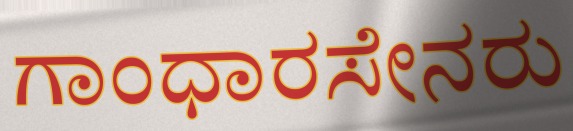
ಗಾಂಧಾರಸೇನರು